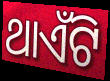
ଥାଏଁଟି